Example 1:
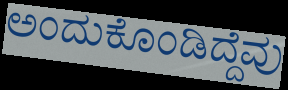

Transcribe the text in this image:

ಅಂದುಕೊಂಡಿದ್ದೆವು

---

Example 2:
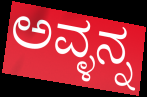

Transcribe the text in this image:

ಅವ್ಳನ್ನ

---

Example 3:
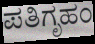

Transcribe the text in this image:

ಪತಿಗೃಹಂ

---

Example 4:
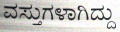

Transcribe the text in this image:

ವಸ್ತುಗಳಾಗಿದ್ದು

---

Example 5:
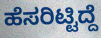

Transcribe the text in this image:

ಹೆಸರಿಟ್ಟಿದ್ದೆ